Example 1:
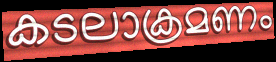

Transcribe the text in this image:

കടലാക്രമണം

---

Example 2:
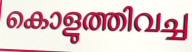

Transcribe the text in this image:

കൊളുത്തിവച്ച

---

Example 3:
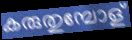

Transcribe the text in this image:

കരുതുമ്പോള്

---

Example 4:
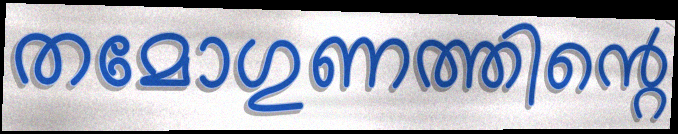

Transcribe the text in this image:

തമോഗുണത്തിന്റെ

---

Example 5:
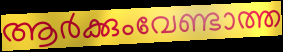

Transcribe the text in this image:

ആർക്കുംവേണ്ടാത്ത